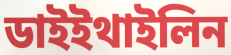
ডাইইথাইলিন